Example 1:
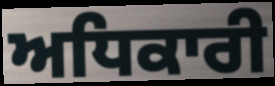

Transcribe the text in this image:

ਅਧਿਕਾਰੀ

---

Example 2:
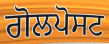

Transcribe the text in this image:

ਗੋਲਪੋਸਟ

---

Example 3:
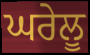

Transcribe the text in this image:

ਘਰੇਲੂ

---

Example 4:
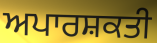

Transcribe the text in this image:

ਅਪਾਰਸ਼ਕਤੀ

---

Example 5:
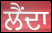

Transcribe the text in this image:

ਲੈਂਦਾ